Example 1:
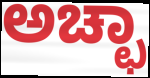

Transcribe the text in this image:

ಅಚ್ಛಾ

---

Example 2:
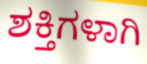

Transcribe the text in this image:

ಶಕ್ತಿಗಳಾಗಿ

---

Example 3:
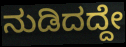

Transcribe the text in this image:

ನುಡಿದದ್ದೇ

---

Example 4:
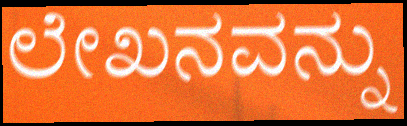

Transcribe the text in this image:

ಲೇಖನವನ್ನು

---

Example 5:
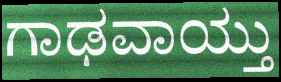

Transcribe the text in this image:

ಗಾಢವಾಯ್ತು